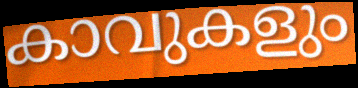
കാവുകളും